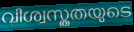
വിശ്വസ്തതയുടെ